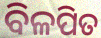
ବିଳପିତ